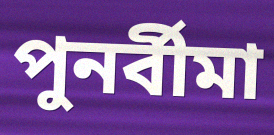
পুনর্বীমা